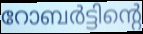
റോബർട്ടിന്റെ